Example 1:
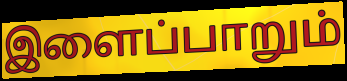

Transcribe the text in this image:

இளைப்பாறும்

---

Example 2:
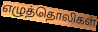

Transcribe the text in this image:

எழுத்தொலிகள்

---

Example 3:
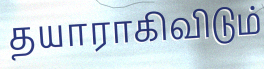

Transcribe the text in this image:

தயாராகிவிடும்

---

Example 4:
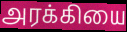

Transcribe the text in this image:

அரக்கியை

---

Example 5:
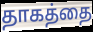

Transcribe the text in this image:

தாகத்தை